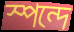
স্পন্দে